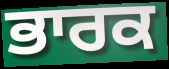
ਭਾਰਕ